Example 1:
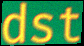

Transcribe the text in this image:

dst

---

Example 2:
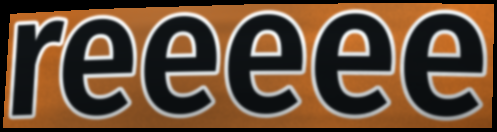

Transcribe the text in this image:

reeeee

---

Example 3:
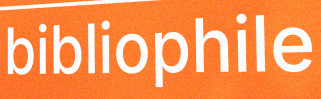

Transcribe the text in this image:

bibliophile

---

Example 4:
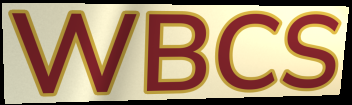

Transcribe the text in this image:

WBCS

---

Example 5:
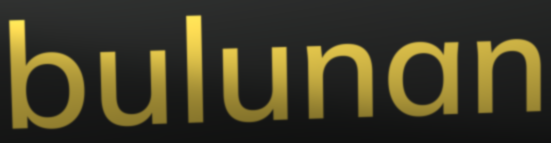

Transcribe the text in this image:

bulunan